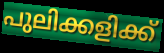
പുലിക്കളിക്ക്